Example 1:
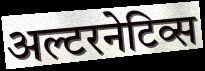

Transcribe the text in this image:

अल्टरनेटिव्स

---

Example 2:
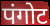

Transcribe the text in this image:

पंगोट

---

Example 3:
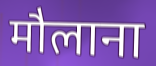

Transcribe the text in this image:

मौलाना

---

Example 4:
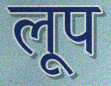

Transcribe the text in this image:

लूप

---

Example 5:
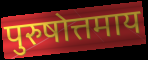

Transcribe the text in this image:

पुरुषोत्तमाय